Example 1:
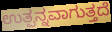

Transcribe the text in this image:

ಉತ್ಪನ್ನವಾಗುತ್ತದೆ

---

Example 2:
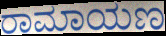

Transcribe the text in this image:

ರಾಮಾಯಣ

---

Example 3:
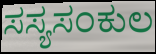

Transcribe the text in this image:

ಸಸ್ಯಸಂಕುಲ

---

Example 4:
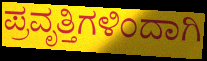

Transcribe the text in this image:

ಪ್ರವೃತ್ತಿಗಳಿಂದಾಗಿ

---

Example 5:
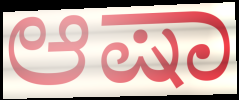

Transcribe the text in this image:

ಆಷಾ